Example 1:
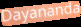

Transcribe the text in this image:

Dayananda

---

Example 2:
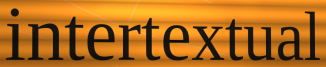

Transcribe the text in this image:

intertextual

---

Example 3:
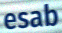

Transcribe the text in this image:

esab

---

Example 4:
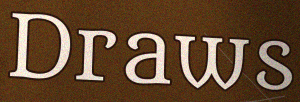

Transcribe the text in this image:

Draws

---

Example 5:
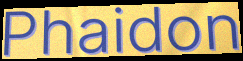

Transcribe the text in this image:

Phaidon